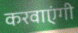
करवाएंगी